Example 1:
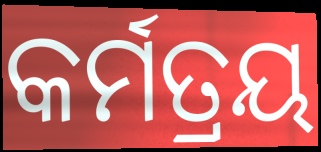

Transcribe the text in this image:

କର୍ମତ୍ରୟ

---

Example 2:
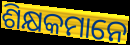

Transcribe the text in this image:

ଶିକ୍ଷକମାନେ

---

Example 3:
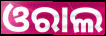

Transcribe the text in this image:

ଓରାଲ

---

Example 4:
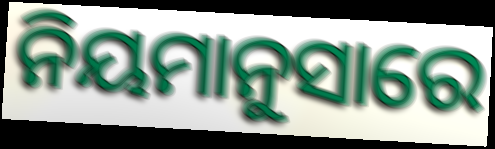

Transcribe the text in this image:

ନିୟମାନୁସାରେ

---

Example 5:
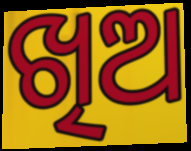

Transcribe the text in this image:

ଖିଅ